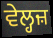
ਵੇਲ੍ਹਜ਼